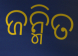
ଜନ୍ମିତ